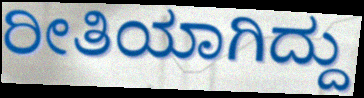
ರೀತಿಯಾಗಿದ್ದು